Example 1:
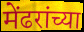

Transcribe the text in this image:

मेंढरांच्या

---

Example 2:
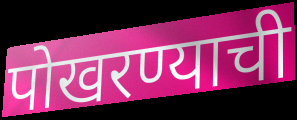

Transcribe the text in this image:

पोखरण्याची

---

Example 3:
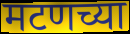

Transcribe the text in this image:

मटणच्या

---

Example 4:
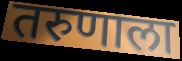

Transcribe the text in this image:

तरुणाला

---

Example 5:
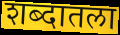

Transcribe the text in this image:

शब्दातला